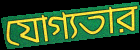
যোগ্যতার